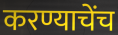
करण्याचेंच